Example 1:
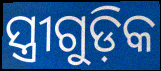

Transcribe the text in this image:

ସ୍ତ୍ରୀଗୁଡ଼ିକ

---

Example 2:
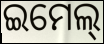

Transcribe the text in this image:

ଇମେଲ୍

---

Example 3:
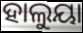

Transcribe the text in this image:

ହାଲୁୟା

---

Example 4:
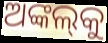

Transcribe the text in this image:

ଅଙ୍କଲ୍‌କୁ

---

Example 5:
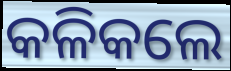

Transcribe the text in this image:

କଳିକଲେ